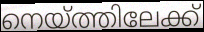
നെയ്ത്തിലേക്ക്